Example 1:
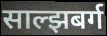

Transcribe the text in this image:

साल्झबर्ग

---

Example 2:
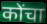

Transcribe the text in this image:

कोंचा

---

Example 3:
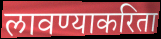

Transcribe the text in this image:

लावण्याकरिता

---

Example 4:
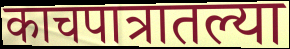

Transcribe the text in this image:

काचपात्रातल्या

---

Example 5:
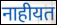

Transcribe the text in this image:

नाहीयत